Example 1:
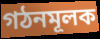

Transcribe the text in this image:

গঠনমূলক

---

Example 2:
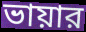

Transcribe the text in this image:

ভায়ার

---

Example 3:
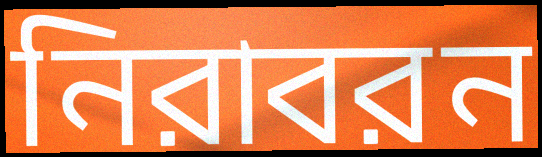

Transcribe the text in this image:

নিরাবরন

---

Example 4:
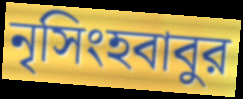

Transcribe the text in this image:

নৃসিংহবাবুর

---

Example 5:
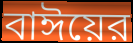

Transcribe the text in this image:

বাঈয়ের